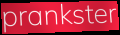
prankster